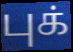
புக்